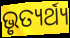
ଭୃତ୍ୟର୍ଥ୍ୟ